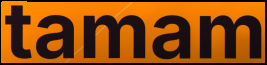
tamam